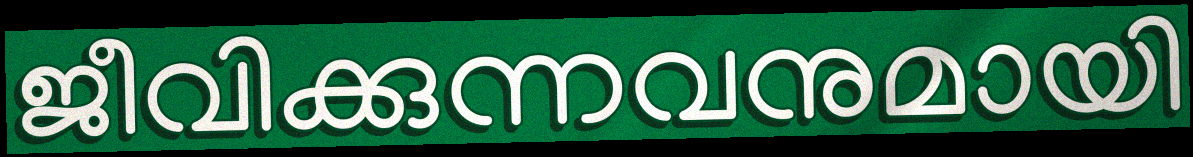
ജീവിക്കുന്നവനുമായി